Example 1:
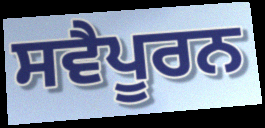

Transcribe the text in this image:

ਸਵੈਪੂਰਨ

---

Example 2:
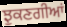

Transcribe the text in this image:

ਝੁਕਣਗੀਆਂ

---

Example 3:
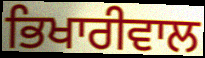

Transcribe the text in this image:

ਭਿਖਾਰੀਵਾਲ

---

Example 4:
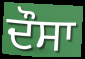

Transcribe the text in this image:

ਦੌਸਾ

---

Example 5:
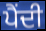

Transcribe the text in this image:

ਪੈਂਦੀ